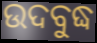
ଉଦବୁଦ୍ଧ